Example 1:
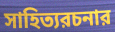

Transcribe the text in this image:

সাহিত্যরচনার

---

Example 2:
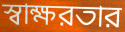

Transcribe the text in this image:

স্বাক্ষরতার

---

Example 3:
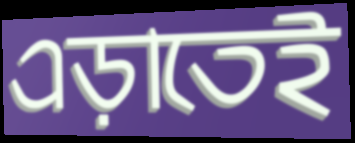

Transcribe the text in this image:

এড়াতেই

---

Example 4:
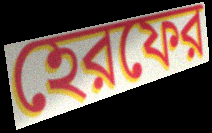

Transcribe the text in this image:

হেরফের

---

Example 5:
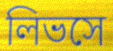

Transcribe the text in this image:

লিভসে